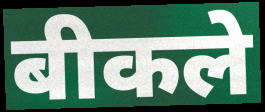
बीकले